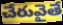
చేరువైతే